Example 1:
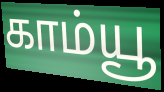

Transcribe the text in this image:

காம்யூ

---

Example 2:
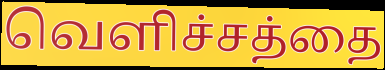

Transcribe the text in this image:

வெளிச்சத்தை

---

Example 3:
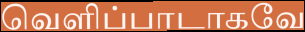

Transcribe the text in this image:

வெளிப்பாடாகவே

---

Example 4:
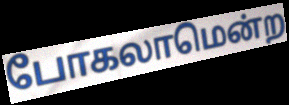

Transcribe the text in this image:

போகலாமென்ற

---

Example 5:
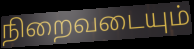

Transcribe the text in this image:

நிறைவடையும்